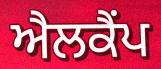
ਐਲਕੈਂਪ